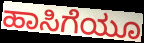
ಹಾಸಿಗೆಯೂ